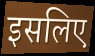
इसलिए